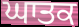
ਘਾਤਕ